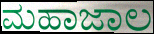
ಮಹಾಜಾಲ